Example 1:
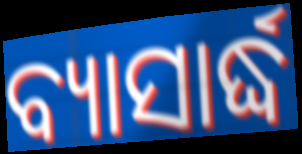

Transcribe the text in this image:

ବ୍ୟାସାର୍ଦ୍ଧ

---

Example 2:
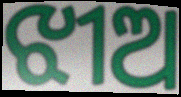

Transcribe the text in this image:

ଝୀଅ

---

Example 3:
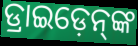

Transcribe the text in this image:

ଡ୍ରାଇଡ଼େନ୍‌ଙ୍କ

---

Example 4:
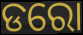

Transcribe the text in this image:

ଡରୋ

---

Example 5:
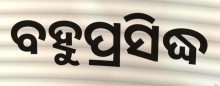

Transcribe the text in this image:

ବହୁପ୍ରସିଦ୍ଧ